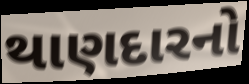
થાણદારનો